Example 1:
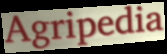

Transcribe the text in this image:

Agripedia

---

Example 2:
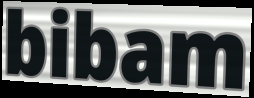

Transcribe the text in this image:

bibam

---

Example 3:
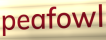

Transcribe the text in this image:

peafowl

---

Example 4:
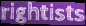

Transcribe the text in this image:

rightists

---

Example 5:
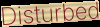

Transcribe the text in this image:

Disturbed